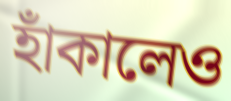
হাঁকালেও